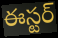
ఈస్టర్